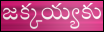
జక్కయ్యకు